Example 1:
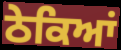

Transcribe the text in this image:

ਠੇਕਿਆਂ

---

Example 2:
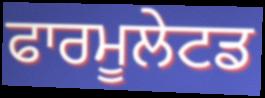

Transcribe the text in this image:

ਫਾਰਮੂਲੇਟਡ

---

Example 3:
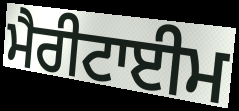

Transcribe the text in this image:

ਮੈਰੀਟਾਈਮ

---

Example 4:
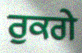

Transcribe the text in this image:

ਰੁਕਗੇ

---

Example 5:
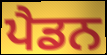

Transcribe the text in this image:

ਪੈਡਨ